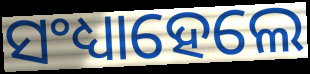
ସଂଧ୍ୟାହେଲେ